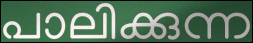
പാലിക്കുന്ന